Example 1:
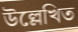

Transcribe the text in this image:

উল্লেখিত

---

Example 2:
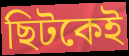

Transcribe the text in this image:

ছিটকেই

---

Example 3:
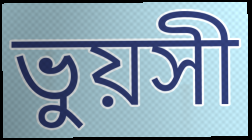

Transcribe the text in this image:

ভুয়সী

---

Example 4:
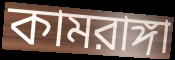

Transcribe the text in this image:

কামরাঙ্গা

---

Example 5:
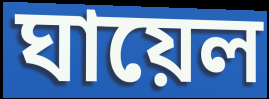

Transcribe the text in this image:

ঘায়েল